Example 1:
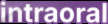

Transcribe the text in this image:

intraoral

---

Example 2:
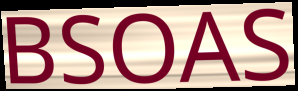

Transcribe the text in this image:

BSOAS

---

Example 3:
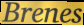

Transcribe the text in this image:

Brenes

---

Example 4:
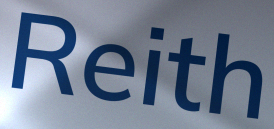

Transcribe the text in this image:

Reith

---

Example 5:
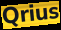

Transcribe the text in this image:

Qrius